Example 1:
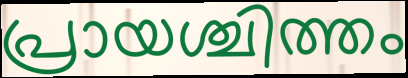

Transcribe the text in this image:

പ്രായശ്ചിത്തം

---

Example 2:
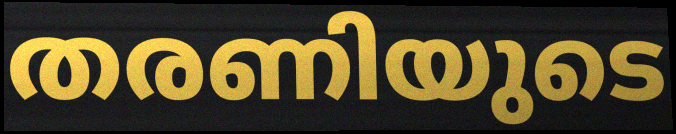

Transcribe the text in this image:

തരണിയുടെ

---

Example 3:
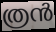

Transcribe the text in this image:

ത്രൻ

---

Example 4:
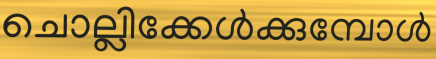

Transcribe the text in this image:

ചൊല്ലിക്കേൾക്കുമ്പോൾ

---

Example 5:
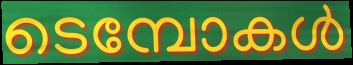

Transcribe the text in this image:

ടെമ്പോകൾ